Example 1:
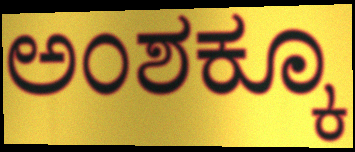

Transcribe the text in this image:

ಅಂಶಕ್ಕೂ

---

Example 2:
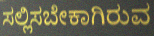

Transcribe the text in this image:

ಸಲ್ಲಿಸಬೇಕಾಗಿರುವ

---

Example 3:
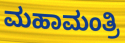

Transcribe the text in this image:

ಮಹಾಮಂತ್ರಿ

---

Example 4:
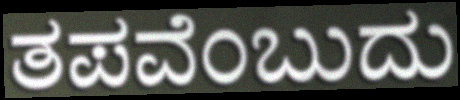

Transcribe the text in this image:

ತಪವೆಂಬುದು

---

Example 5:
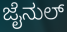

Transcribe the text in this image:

ಜೈನುಲ್